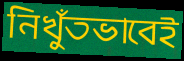
নিখুঁতভাবেই